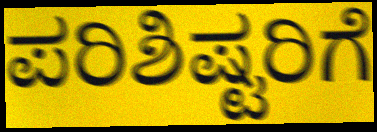
ಪರಿಶಿಷ್ಟರಿಗೆ